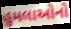
હુમલાઓનો